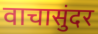
वाचासुंदर